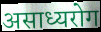
असाध्यरोग